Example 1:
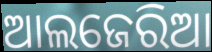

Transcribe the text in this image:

ଆଲଜେରିଆ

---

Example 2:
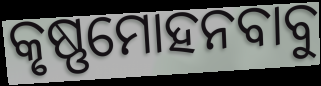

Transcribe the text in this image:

କୃଷ୍ଣମୋହନବାବୁ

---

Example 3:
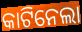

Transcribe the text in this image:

କାଟିନେଲା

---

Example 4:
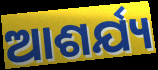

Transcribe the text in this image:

ଆଶର୍ଯ୍ୟ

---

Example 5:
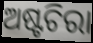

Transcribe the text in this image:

ଅଷ୍ଟଚିରା